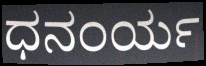
ಧನಂರ್ಯ